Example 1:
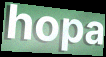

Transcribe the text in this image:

hopa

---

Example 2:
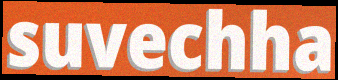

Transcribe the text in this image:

suvechha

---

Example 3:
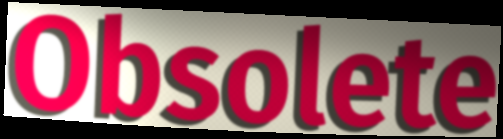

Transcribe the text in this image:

Obsolete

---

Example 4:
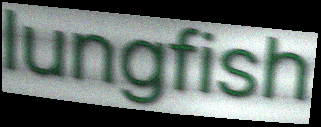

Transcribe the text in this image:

lungfish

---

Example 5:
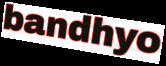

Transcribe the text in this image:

bandhyo